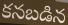
కనబడిన